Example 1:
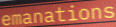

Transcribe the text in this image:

emanations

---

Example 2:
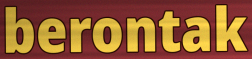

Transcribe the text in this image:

berontak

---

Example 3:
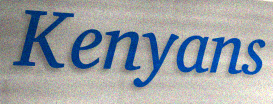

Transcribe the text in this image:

Kenyans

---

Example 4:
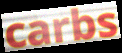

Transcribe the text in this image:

carbs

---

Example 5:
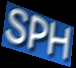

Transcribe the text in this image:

SPH